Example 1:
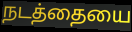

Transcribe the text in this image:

நடத்தையை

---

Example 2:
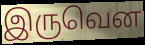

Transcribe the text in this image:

இருவென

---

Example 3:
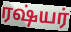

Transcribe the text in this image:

ரஷ்யர்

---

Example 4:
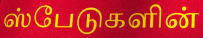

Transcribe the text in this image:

ஸ்பேடுகளின்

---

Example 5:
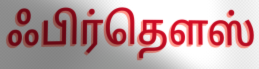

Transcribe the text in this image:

ஃபிர்தௌஸ்